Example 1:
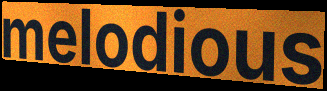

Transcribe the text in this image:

melodious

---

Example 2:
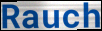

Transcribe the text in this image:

Rauch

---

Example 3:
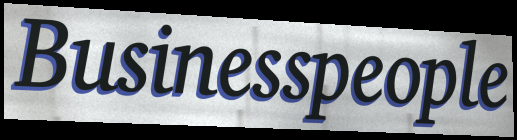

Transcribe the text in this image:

Businesspeople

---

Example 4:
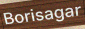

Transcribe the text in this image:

Borisagar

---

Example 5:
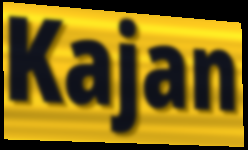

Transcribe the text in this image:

Kajan